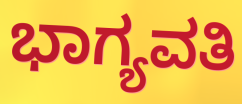
ಭಾಗ್ಯವತಿ